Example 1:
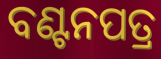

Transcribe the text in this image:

ବଣ୍ଟନପତ୍ର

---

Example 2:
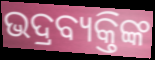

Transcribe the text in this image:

ଭଦ୍ରବ୍ୟକ୍ତିଙ୍କ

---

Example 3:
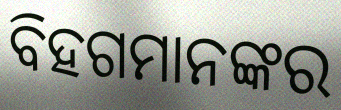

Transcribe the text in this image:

ବିହଗମାନଙ୍କର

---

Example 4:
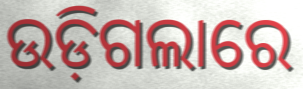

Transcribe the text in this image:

ଉଡ଼ିଗଲାରେ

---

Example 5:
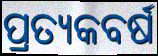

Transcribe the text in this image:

ପ୍ରତ୍ୟକବର୍ଷ